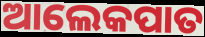
ଆଲେକପାତ